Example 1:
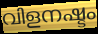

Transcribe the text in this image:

വിളനഷ്ടം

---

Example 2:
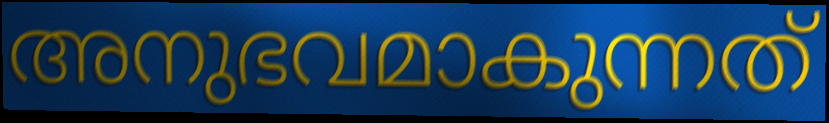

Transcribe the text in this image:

അനുഭവമാകുന്നത്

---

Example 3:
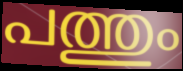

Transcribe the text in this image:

പത്തും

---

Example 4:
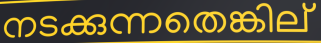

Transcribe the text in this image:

നടക്കുന്നതെങ്കില്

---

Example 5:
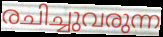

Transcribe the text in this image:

രചിച്ചുവരുന്ന